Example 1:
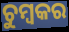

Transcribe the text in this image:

ଚୁମ୍ବକର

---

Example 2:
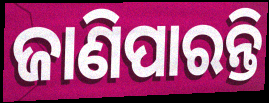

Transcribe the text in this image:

ଜାଣିପାରନ୍ତି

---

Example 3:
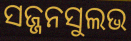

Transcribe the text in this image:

ସଜ୍ଜନସୁଲଭ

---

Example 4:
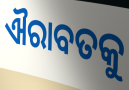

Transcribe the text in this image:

ଐରାବତକୁ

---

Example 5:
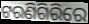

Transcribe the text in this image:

ଟରଣିଗିରିରେ